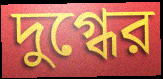
দুগ্ধের